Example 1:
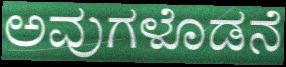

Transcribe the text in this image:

ಅವುಗಳೊಡನೆ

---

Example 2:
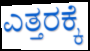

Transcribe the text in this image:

ಎತ್ತರಕ್ಕೆ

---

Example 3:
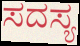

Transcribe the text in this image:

ಸದಸ್ಯ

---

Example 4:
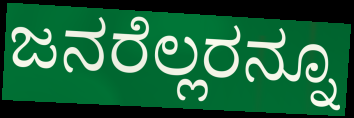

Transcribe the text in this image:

ಜನರೆಲ್ಲರನ್ನೂ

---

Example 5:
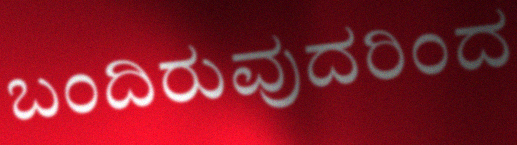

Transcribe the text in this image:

ಬಂದಿರುವುದರಿಂದ